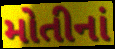
મોતીનાં